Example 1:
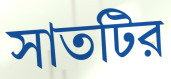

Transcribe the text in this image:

সাতটির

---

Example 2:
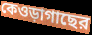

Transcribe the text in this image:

কেওড়াগাছের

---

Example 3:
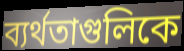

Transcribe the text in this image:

ব্যর্থতাগুলিকে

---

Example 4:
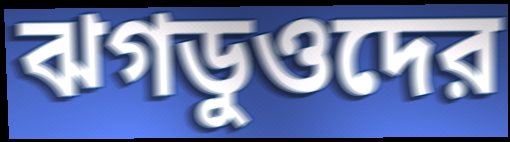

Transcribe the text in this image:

ঝগডুওদের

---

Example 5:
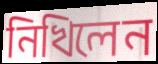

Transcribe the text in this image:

নিখিলেন